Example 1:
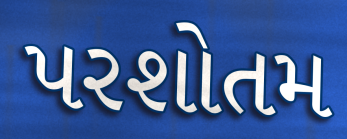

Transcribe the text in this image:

પરશોતમ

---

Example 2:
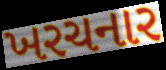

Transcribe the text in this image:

ખરચનાર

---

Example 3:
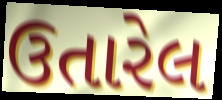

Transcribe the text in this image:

ઉતારેલ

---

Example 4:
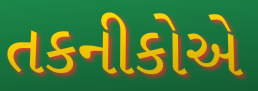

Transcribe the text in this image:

તકનીકોએ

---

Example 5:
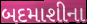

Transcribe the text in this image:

બદમાશીના